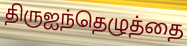
திருஐந்தெழுத்தை